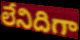
లేనిదిగా